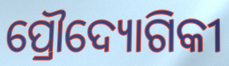
ପ୍ରୌଦ୍ୟୋଗିକୀ